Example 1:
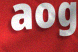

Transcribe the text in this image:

aog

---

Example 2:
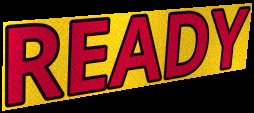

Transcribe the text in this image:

READY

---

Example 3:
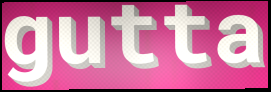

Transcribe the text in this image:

gutta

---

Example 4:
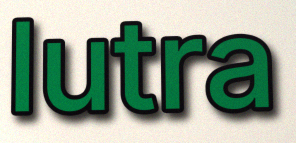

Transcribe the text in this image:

lutra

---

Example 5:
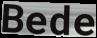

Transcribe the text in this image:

Bede